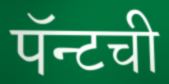
पॅन्टची